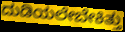
ದುಡಿಯಲೇಬೇಕಿತ್ತು